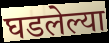
घडलेल्या